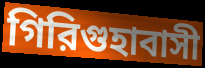
গিরিগুহাবাসী